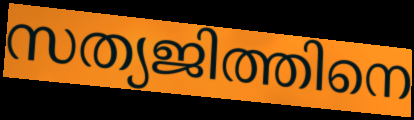
സത്യജിത്തിനെ